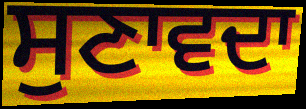
ਸੁਣਾਵਦਾ